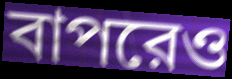
বাপরেও